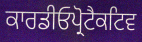
ਕਾਰਡੀਓਪ੍ਰੋਟੈਕਟਿਵ